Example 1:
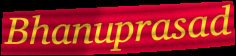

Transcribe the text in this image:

Bhanuprasad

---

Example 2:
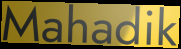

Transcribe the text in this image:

Mahadik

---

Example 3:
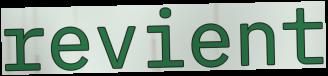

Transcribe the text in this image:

revient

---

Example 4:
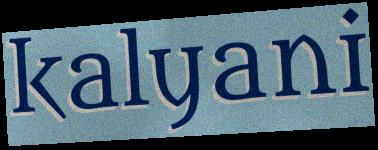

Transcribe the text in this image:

kalyani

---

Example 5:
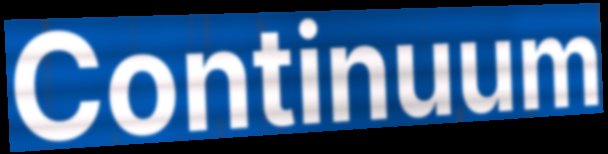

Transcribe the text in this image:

Continuum